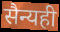
सैन्यही